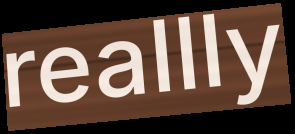
reallly